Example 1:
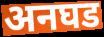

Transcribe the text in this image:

अनघड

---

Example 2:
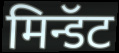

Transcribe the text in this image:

मिन्डॅट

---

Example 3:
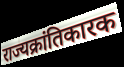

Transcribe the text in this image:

राज्यक्रांतिकारक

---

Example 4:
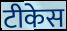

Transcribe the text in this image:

टीकेस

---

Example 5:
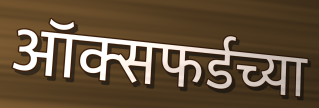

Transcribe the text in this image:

ऑक्सफर्डच्या